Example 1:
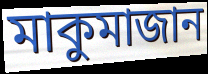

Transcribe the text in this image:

মাকুমাজান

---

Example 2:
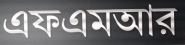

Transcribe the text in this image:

এফএমআর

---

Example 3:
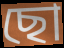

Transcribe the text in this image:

ছো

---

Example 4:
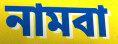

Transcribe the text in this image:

নামবা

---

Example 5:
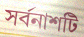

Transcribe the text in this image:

সর্বনাশটি